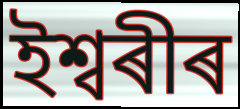
ইশ্বৰীৰ